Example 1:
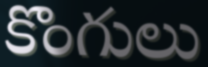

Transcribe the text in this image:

కొంగులు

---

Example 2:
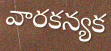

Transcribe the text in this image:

వారకన్యక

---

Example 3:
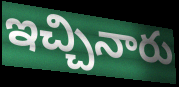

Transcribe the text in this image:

ఇచ్చినారు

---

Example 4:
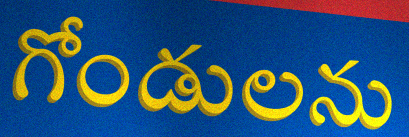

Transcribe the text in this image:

గోండులను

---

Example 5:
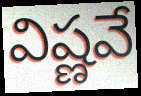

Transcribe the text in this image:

విష్ణవే